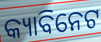
କ୍ୟାବିନେଟ